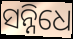
ସନ୍ନିଧେ